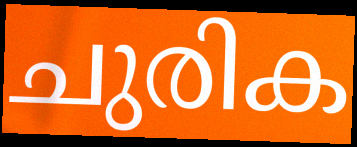
ചുരിക